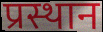
प्रस्थान